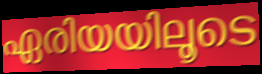
ഏരിയയിലൂടെ